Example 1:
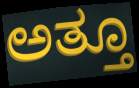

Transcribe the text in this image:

ಅತ್ತೂ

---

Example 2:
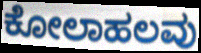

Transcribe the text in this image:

ಕೋಲಾಹಲವು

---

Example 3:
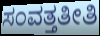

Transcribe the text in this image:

ಸಂವತ್ತತೀತಿ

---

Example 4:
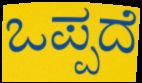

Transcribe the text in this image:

ಒಪ್ಪದೆ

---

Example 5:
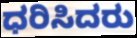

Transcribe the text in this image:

ಧರಿಸಿದರು